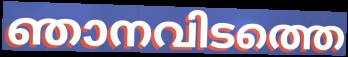
ഞാനവിടത്തെ